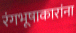
रंगभूषाकारांना